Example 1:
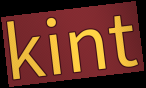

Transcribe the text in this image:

kint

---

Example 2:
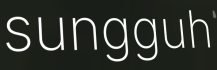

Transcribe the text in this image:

sungguh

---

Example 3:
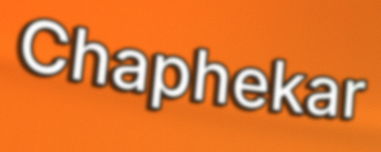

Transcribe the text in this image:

Chaphekar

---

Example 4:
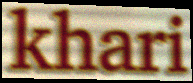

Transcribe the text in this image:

khari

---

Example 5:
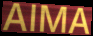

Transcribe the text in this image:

AIMA